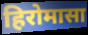
हिरोमासा